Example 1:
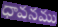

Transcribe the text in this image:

ధావనము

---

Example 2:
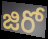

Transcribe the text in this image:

జిరో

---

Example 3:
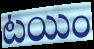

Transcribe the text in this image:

టయిం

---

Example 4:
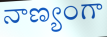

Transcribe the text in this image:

నాణ్యంగా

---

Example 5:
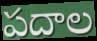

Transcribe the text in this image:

పదాల